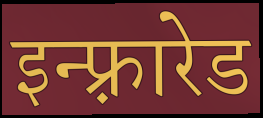
इन्फ़्रारेड